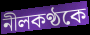
নীলকণ্ঠকে